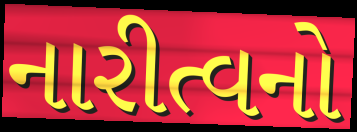
નારીત્વનો